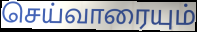
செய்வாரையும்